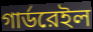
গার্ডরেইল